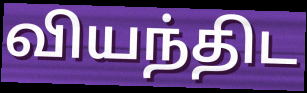
வியந்திட